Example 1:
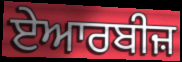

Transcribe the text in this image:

ਏਆਰਬੀਜ਼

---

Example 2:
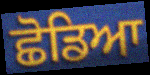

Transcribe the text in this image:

ਛੋਡਿਆ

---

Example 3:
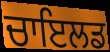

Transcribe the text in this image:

ਚਾਇਲਡ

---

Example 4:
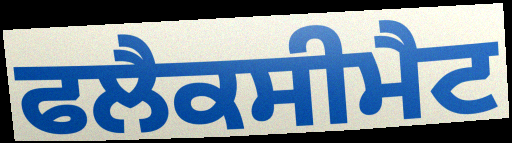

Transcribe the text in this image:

ਫਲੈਕਸੀਮੈਟ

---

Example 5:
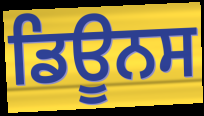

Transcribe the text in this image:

ਡਿਊਨਸ